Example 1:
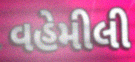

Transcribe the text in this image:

વહેમીલી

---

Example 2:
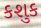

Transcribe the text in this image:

કશુક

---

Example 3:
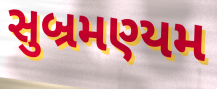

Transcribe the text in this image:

સુબ્રમણ્યમ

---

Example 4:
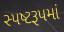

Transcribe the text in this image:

સ્પષ્ટરૂપમાં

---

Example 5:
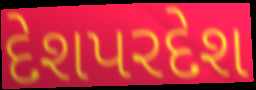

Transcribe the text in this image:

દેશપરદેશ